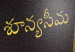
శూన్యసీమ